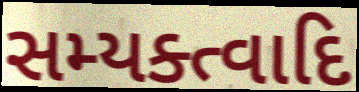
સમ્યક્ત્વાદિ